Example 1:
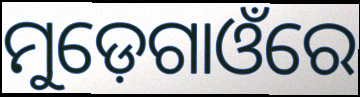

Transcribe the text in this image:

ମୁଡ଼େଗାଓଁରେ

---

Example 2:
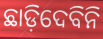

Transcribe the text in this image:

ଛାଡ଼ିଦେବିନି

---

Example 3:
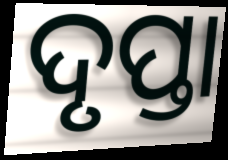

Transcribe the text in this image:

ଦୃପ୍ତା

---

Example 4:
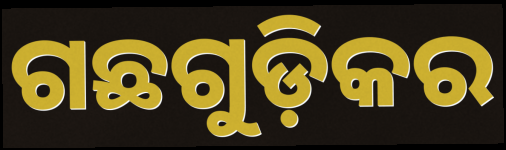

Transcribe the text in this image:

ଗଛଗୁଡ଼ିକର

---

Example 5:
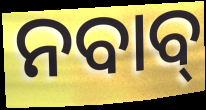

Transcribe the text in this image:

ନବାବ୍